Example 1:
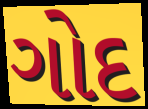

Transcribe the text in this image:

ગોદ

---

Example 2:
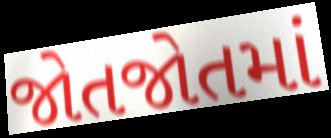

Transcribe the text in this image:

જોતજોતમાં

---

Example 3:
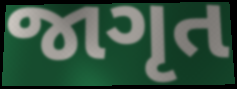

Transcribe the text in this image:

જાગૃત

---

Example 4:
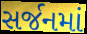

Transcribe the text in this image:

સર્જનમાં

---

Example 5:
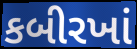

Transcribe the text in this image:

કબીરખાં